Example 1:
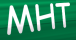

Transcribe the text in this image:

MHT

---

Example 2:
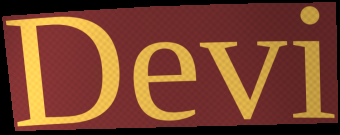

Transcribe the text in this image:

Devi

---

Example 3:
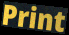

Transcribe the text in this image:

Print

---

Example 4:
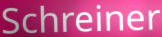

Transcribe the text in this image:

Schreiner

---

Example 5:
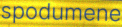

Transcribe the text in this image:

spodumene